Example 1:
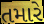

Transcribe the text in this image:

તમારે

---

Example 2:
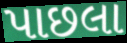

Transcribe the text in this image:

પાછલા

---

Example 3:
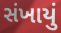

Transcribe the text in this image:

સંખાયું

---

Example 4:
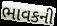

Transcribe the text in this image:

ભાવકની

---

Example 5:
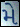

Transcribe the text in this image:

મે